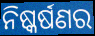
ନିଷ୍କର୍ଷଣର